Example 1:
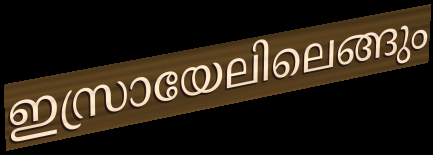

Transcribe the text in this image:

ഇസ്രായേലിലെങ്ങും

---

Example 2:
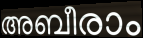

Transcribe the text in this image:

അബീരാം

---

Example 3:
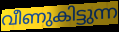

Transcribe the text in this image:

വീണുകിട്ടുന്ന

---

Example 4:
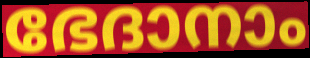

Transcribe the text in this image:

ഭേദാനാം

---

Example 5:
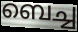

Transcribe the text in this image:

ബെച്ച